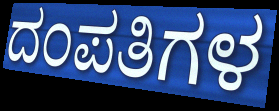
ದಂಪತಿಗಳ